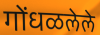
गोंधळलेले